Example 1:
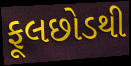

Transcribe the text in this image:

ફૂલછોડથી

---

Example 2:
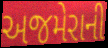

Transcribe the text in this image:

અજમેરાની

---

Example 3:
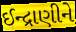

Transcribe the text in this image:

ઈન્દ્રાણીને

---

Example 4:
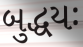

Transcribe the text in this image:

બુદ્ધયઃ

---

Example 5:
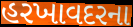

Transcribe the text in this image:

હરખાવદરના